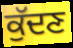
ਕੁੱਦਣ